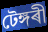
টেঙ্গৰী